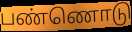
பண்ணொடு